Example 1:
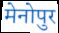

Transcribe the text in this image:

मेनोपुर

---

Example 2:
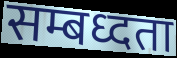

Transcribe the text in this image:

सम्बध्दता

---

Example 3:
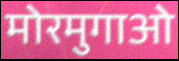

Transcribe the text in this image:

मोरमुगाओ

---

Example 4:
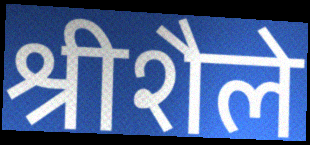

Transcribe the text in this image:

श्रीशैले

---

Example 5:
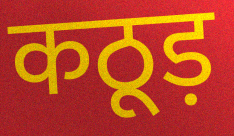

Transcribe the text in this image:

कठूड़